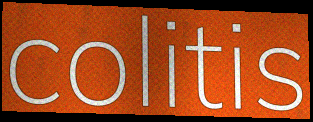
colitis